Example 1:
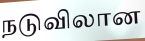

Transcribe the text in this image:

நடுவிலான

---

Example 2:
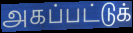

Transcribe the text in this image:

அகப்பட்டுக்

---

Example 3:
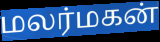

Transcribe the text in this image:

மலர்மகன்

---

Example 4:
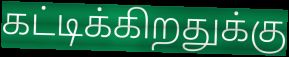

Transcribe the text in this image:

கட்டிக்கிறதுக்கு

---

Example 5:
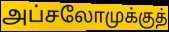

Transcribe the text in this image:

அப்சலோமுக்குத்